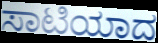
ಸಾಟಿಯಾದ